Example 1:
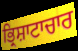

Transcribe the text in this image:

ਭ੍ਰਿਸ਼ਾਟਾਚਾਰ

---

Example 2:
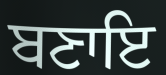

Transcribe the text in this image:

ਬਣਾਇ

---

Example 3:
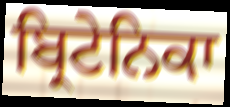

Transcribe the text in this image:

ਬ੍ਰਿਟੇਨਿਕਾ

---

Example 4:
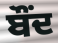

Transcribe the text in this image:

ਬੌਂਦ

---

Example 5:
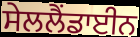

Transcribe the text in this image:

ਸੇਲਲੈਂਡਾਈਨ